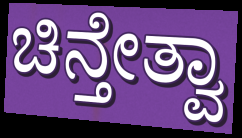
ಚಿನ್ತೇತ್ವಾ